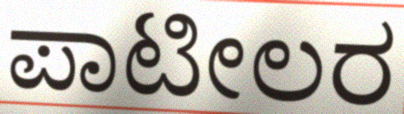
ಪಾಟೀಲರ